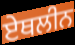
ਏਥਲੀਨ